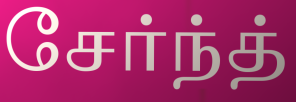
சேர்ந்த்